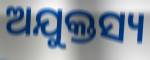
ଅଯୁକ୍ତସ୍ୟ